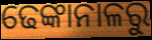
ଢେଙ୍କାନାଳରୁ